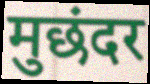
मुछंदर